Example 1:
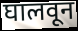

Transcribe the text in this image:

घालवून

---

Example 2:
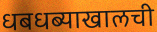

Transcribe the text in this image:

धबधब्याखालची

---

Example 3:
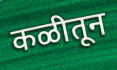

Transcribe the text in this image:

कळीतून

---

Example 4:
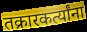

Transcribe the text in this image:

तक्रारकर्त्यांना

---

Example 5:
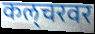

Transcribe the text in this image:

कल्चरवर